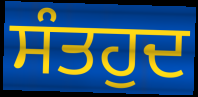
ਸੰਤਹੁਦ